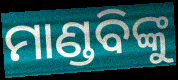
ମାଣ୍ଡବିଙ୍କୁ